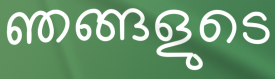
ഞങ്ങളുടെ